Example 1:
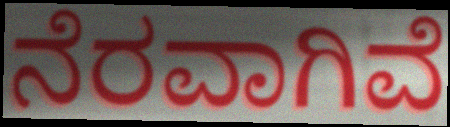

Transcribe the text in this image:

ನೆರವಾಗಿವೆ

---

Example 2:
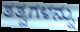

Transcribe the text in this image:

ತತ್ವಗಳನ್ನು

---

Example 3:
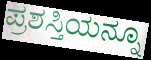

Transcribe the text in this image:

ಪ್ರಶಸ್ತಿಯನ್ನೂ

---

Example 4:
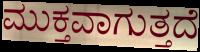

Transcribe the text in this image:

ಮುಕ್ತವಾಗುತ್ತದೆ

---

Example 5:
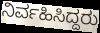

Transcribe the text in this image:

ನಿರ್ವಹಿಸಿದ್ದರು